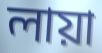
লায়া